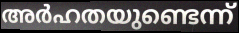
അർഹതയുണ്ടെന്ന്